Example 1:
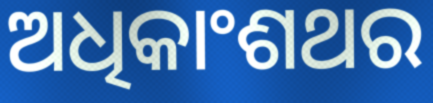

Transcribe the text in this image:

ଅଧିକାଂଶଥର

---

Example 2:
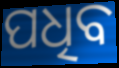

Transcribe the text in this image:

ପଧିବ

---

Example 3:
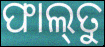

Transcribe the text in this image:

ଫାଲ୍‌ତୁ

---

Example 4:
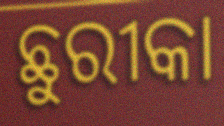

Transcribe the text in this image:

ଛୁରୀକା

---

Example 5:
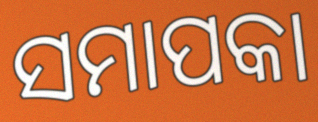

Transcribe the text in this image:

ସମାପକା